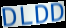
DLDD